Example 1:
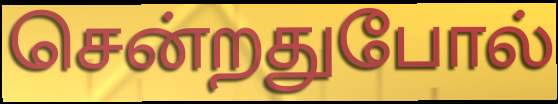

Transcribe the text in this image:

சென்றதுபோல்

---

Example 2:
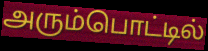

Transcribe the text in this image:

அரும்பொட்டில்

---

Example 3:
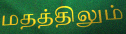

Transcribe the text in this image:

மதத்திலும்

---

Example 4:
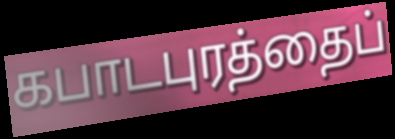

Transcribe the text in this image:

கபாடபுரத்தைப்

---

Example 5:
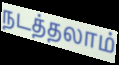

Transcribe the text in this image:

நடத்தலாம்